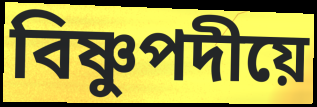
বিষ্ণুপদীয়ে